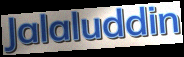
Jalaluddin